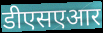
डीएसएआर